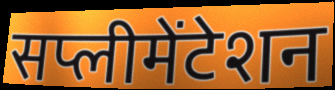
सप्लीमेंटेशन